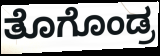
ತೊಗೊಂಡ್ರ